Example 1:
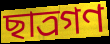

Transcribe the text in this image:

ছাত্রগণ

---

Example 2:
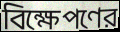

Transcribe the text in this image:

বিক্ষেপণের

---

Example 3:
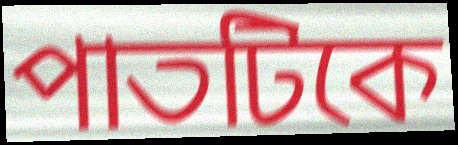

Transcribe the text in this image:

পাতটিকে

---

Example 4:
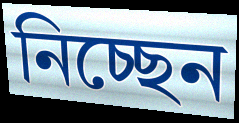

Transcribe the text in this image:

নিচ্ছেন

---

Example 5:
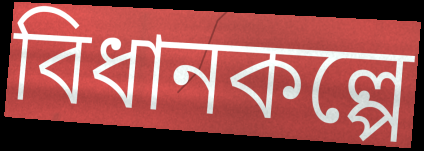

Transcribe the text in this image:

বিধানকল্পে